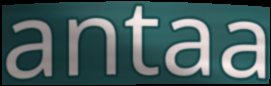
antaa